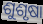
ଶୁଶୃଷା